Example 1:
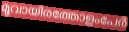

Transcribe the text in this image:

മൂവായിരത്തോളംപേർ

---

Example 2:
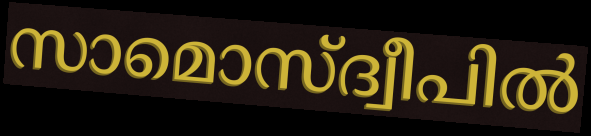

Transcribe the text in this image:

സാമൊസ്ദ്വീപിൽ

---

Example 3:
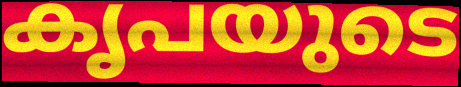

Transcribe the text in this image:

കൃപയുടെ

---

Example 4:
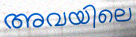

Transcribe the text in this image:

അവയിലെ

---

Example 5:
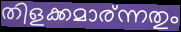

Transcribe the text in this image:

തിളക്കമാര്ന്നതും